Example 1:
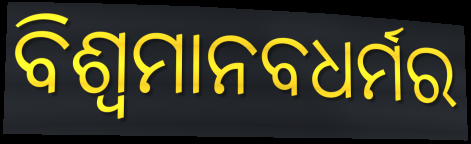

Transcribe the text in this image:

ବିଶ୍ବମାନବଧର୍ମର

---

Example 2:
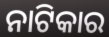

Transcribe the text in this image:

ନାଟିକାର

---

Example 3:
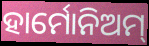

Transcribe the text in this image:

ହାର୍ମୋନିଅମ୍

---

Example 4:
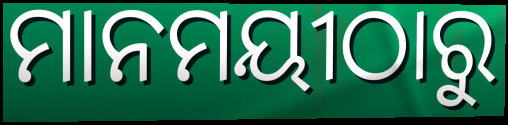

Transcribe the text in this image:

ମାନମୟୀଠାରୁ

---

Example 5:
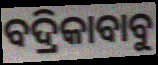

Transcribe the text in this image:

ବଦ୍ରିକାବାବୁ